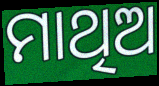
ମାଥିଅ